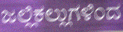
ಜಲ್ಲಿಕಲ್ಲುಗಳಿಂದ